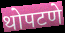
थोपटणे